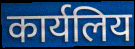
कार्यलिय